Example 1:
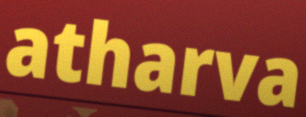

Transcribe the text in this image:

atharva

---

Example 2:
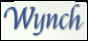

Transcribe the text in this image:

Wynch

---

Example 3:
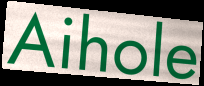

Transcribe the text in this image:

Aihole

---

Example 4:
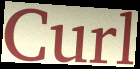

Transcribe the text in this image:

Curl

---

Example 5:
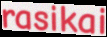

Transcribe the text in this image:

rasikai